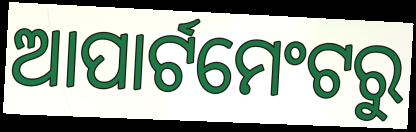
ଆପାର୍ଟମେଂଟରୁ